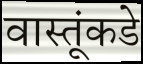
वास्तूंकडे